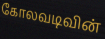
கோலவடிவின்